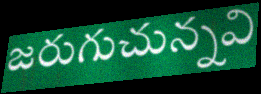
జరుగుచున్నవి